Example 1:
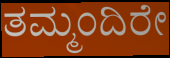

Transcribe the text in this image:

ತಮ್ಮಂದಿರೇ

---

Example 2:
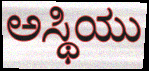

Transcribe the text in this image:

ಅಸ್ಥಿಯು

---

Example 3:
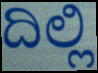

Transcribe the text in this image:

ದಿಲ್ಲಿ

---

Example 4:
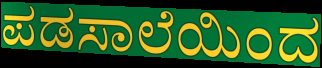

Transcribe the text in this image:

ಪಡಸಾಲೆಯಿಂದ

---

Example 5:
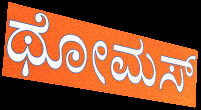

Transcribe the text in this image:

ಥೋಮಸ್